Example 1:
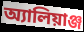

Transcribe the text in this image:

অ্যালিয়াঞ্জ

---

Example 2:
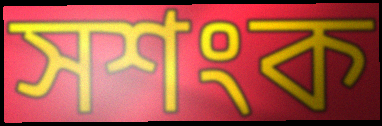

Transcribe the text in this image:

সশংক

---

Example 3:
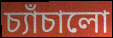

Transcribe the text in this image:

চ্যাঁচালো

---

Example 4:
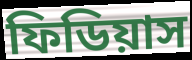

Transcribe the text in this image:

ফিডিয়াস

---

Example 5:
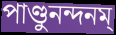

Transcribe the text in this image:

পাণ্ডুনন্দনম্